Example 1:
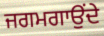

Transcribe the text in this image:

ਜਗਮਗਾਉਂਦੇ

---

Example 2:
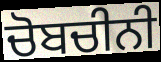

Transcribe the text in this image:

ਚੋਬਚੀਨੀ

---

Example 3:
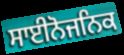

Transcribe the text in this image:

ਸਾਈਨੋਜਨਿਕ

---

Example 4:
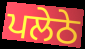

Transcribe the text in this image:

ਪਲੇਠੇ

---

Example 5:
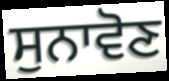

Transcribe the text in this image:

ਸੁਨਾਵੋਣ